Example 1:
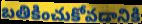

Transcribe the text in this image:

బతికించుకోవడానికి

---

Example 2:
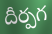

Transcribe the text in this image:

దీర్పగ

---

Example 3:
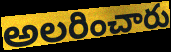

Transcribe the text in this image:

అలరించారు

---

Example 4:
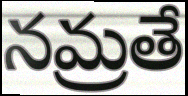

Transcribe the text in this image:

నమ్రతే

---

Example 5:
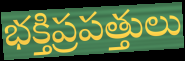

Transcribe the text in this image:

భక్తిప్రపత్తులు